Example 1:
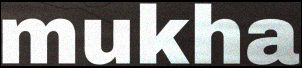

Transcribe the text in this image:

mukha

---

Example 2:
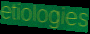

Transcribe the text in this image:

etiologies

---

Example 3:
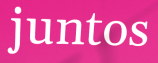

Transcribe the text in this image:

juntos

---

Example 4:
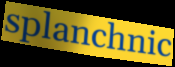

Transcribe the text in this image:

splanchnic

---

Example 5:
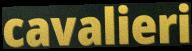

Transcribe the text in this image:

cavalieri